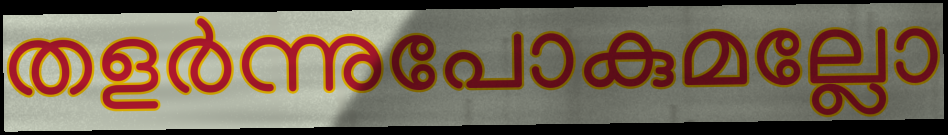
തളർന്നുപോകുമല്ലോ